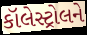
કૉલેસ્ટ્રોલને